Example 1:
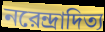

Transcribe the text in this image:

নরেন্দ্রাদিত্য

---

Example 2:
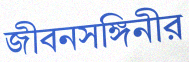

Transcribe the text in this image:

জীবনসঙ্গিনীর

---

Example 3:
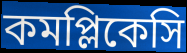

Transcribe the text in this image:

কমপ্লিকেসি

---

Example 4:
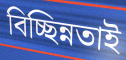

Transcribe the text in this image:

বিচ্ছিন্নতাই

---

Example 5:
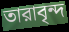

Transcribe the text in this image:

তারাবৃন্দ